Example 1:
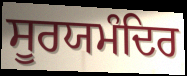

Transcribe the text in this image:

ਸੂਰਯਮੰਦਿਰ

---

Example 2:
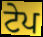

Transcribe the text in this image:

ਟੇਪ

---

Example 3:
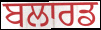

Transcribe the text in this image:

ਬਲਾਰਡ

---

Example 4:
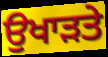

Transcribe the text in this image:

ਉਖਾੜਤੇ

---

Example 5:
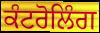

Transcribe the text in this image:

ਕੰਟਰੋਲਿੰਗ